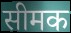
सीमक